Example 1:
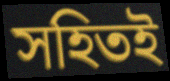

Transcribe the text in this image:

সহিতই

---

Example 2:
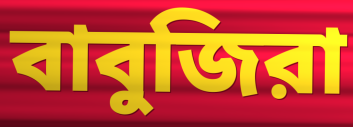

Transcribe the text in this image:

বাবুজিরা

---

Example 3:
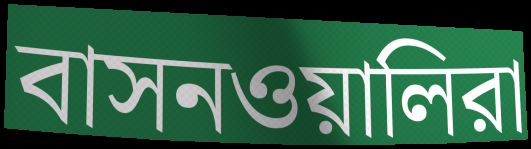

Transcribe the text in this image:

বাসনওয়ালিরা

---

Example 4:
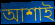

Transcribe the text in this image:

আশাই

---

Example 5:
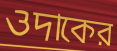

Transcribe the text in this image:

ওদাকের